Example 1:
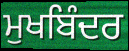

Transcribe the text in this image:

ਮੁਖਬਿੰਦਰ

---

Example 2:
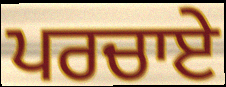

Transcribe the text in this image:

ਪਰਚਾਏ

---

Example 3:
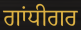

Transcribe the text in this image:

ਗਾਂਧੀਗਰ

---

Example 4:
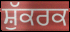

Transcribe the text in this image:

ਸ਼ੁੱਕਰਕ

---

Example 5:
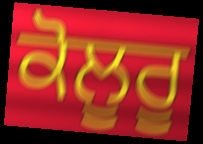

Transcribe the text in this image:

ਕੋਲੂਰੂ